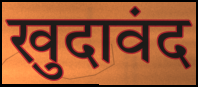
खुदावंद